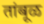
तांबूळ